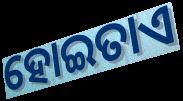
ହୋଇତାଏ